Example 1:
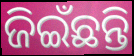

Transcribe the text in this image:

ଜିଇଁଛନ୍ତି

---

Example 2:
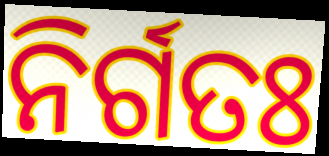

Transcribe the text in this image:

ନିର୍ଗତଃ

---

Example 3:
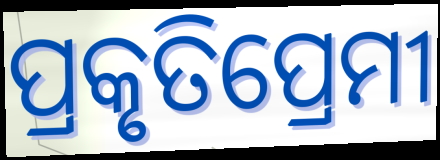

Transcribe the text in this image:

ପ୍ରକୃତିପ୍ରେମୀ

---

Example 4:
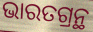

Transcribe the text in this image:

ଭାରତଗ୍ରନ୍ଥ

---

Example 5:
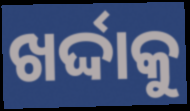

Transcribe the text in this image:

ଖର୍ଦ୍ଦାକୁ